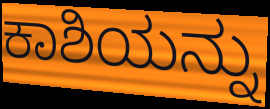
ಕಾಶಿಯನ್ನು